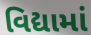
વિદ્યામાં